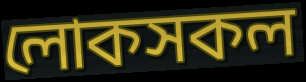
লোকসকল